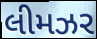
લીમઝર